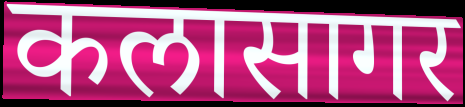
कलासागर